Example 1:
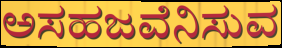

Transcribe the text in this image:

ಅಸಹಜವೆನಿಸುವ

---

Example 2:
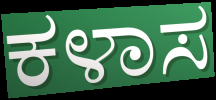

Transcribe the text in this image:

ಕಳಾಸ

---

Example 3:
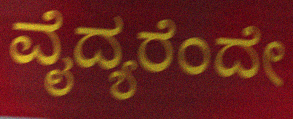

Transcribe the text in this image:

ವೈದ್ಯರೆಂದೇ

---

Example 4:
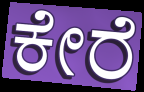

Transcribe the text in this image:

ಕೇರೆ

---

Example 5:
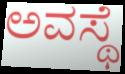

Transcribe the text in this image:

ಅವಸ್ಥೆ